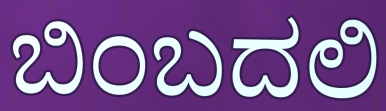
ಬಿಂಬದಲಿ